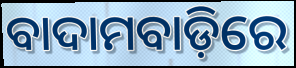
ବାଦାମବାଡ଼ିରେ